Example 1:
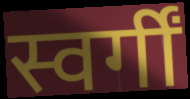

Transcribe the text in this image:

स्वर्गीं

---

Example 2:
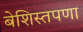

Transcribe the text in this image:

बेशिस्तपणा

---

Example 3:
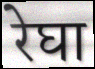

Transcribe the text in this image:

रेघा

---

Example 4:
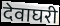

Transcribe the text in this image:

देवाघरी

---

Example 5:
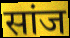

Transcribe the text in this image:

सांज